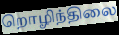
றொழிந்திலை